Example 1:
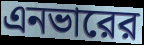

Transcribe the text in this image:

এনভারের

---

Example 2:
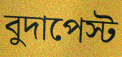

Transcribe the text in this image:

বুদাপেস্ট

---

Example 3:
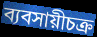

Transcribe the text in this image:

ব্যবসায়ীচক্র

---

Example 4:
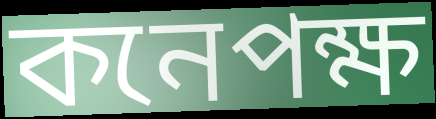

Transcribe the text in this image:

কনেপক্ষ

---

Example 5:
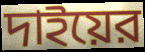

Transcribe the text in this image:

দাইয়ের